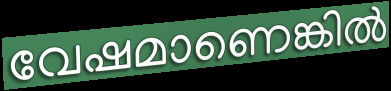
വേഷമാണെങ്കിൽ